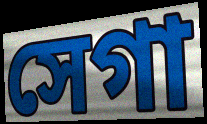
সেগা